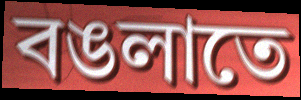
বঙলাতে